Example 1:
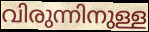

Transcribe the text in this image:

വിരുന്നിനുള്ള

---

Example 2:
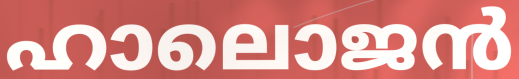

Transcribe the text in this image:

ഹാലൊജൻ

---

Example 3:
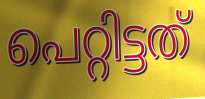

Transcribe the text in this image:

പെറ്റിട്ടത്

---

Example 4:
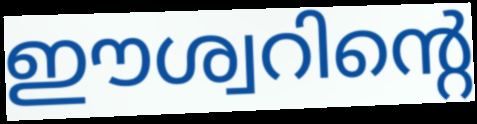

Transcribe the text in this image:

ഈശ്വറിന്റെ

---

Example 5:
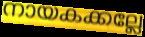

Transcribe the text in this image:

നായകക്കല്ലേ